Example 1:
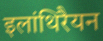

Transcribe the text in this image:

इलांथिरैयन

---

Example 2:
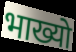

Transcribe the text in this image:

भाख्यो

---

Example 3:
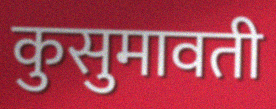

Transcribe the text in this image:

कुसुमावती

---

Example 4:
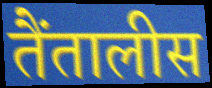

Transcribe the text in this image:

तैंतालीस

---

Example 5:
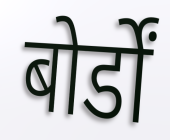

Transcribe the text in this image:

बोर्डों